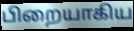
பிறையாகிய